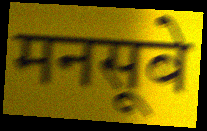
मनसूबे